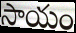
సాయం